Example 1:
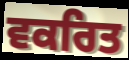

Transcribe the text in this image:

ਵਕਰਿਤ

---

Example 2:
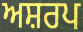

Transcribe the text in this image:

ਅਸ਼ਰਪ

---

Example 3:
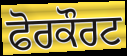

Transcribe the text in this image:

ਫੋਰਕੌਰਟ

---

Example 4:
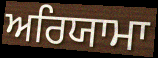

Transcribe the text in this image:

ਅਰਿਯਾਮਾ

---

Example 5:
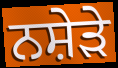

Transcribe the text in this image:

ਨਸ਼ੇੜੇ